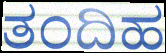
ತಂದಿಹ